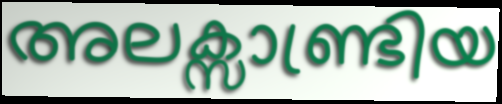
അലക്സാണ്ട്രിയ